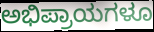
ಅಭಿಪ್ರಾಯಗಳೂ